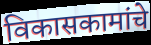
विकासकामांचे